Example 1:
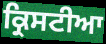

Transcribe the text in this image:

ਕ੍ਰਿਸਟੀਆ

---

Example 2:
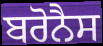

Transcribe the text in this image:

ਬਰੋਨੈਸ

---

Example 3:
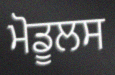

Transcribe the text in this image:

ਮੋਡੂਲਸ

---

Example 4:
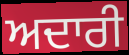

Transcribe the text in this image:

ਅਦਾਰੀ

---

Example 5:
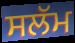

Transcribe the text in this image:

ਸਲੱਮ